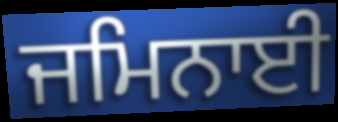
ਜਮਿਨਾਈ